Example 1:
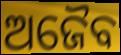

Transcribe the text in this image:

ଅଜୈବ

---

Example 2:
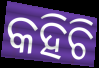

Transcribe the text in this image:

କହିଚି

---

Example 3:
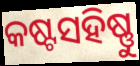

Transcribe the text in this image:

କଷ୍ଟସହିଷ୍ଣୁ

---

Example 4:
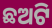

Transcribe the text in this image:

ଛଅଟି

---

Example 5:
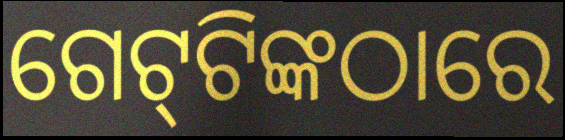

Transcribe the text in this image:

ଗେଟ୍‌ଟିଙ୍କଠାରେ